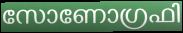
സോണോഗ്രഫി